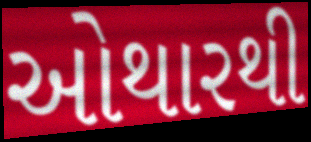
ઓથારથી